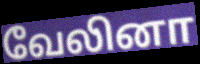
வேலினா